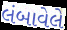
લંબાવેલે